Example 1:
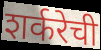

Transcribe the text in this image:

शर्करेची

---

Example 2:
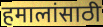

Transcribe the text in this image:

हमालांसाठी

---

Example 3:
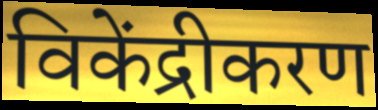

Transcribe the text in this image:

विकेंद्रीकरण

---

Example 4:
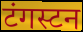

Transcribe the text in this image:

टंगस्टन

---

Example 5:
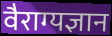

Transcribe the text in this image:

वैराग्यज्ञान